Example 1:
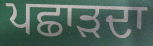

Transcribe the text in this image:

ਪਛਾੜਦਾ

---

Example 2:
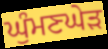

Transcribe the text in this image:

ਘੁੰਮਣਘੇੜ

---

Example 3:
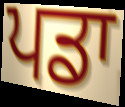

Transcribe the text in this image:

ਪਡਾ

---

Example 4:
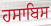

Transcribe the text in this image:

ਹਸਾਬਿਸ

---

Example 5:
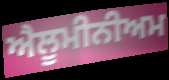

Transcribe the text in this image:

ਐਲੂਮੀਨੀਅਮ